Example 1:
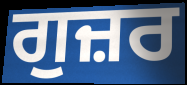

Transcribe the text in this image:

ਗੁਜ਼ਰ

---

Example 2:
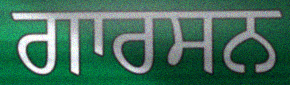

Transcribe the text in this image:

ਗਾਰਸਨ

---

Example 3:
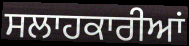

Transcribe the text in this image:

ਸਲਾਹਕਾਰੀਆਂ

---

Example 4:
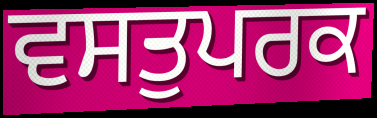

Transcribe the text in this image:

ਵਸਤੁਪਰਕ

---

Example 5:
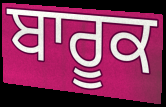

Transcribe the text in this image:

ਬਾਰੂਕ